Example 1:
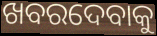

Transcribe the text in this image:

ଖବରଦେବାକୁ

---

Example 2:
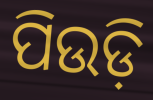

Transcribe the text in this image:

ପିଉଡ଼ି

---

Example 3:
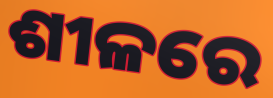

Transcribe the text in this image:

ଶୀଳରେ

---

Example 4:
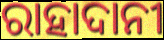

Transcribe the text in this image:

ରାହାଦାନୀ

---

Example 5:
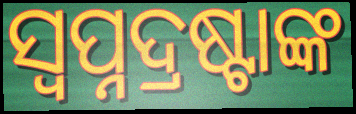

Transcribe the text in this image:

ସ୍ୱପ୍ନଦ୍ରଷ୍ଟାଙ୍କ